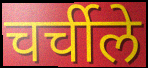
चर्चीले